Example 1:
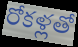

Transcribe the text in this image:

రోకళ్లతో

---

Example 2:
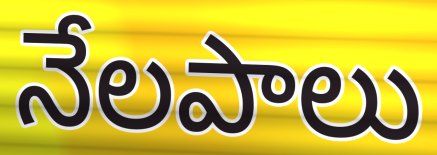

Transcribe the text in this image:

నేలపాలు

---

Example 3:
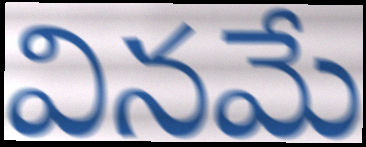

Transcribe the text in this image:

వినమే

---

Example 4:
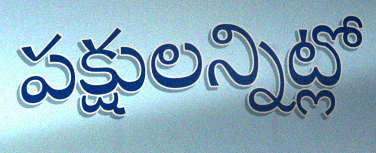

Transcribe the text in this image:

పక్షులన్నిట్లో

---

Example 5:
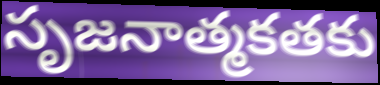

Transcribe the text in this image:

సృజనాత్మకతకు